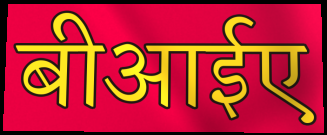
बीआईए